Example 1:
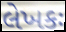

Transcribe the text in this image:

લેખકઃ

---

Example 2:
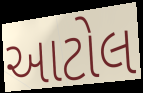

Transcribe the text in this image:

આટોલ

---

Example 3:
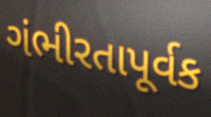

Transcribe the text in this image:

ગંભીરતાપૂર્વક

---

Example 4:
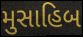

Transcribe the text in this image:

મુસાહિબ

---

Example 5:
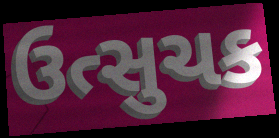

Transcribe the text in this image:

ઉત્સુચક